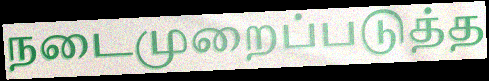
நடைமுறைப்படுத்த